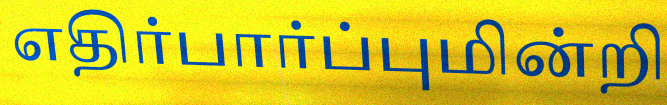
எதிர்பார்ப்புமின்றி